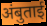
अंबुताई